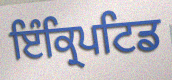
ਇੰਕ੍ਰਿਪਟਿਡ